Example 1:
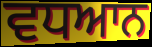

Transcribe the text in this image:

ਵਧਆਨ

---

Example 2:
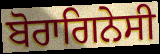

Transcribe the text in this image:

ਬੋਰਾਗਿਨੇਸੀ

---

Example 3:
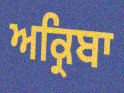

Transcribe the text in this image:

ਅਕ੍ਰਿਬਾ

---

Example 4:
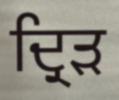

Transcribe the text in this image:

ਦ੍ਰਿਡ਼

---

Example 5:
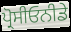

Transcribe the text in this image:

ਪ੍ਰੋਸੀਓਨੀਡੇ